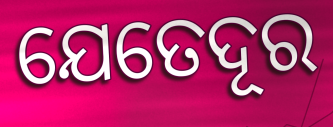
ଯେତେଦୂର